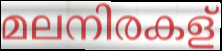
മലനിരകള്